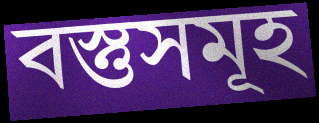
বস্তুসমূহ